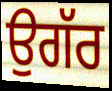
ਉਗੱਰ